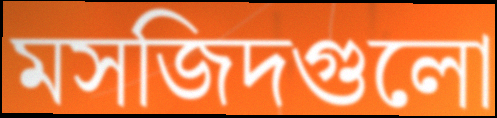
মসজিদগুলো